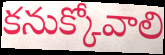
కనుక్కోవాలి